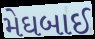
મેઘબાઈ